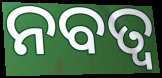
ନବତ୍ଵ